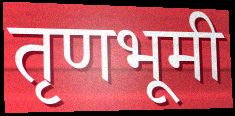
तृणभूमी